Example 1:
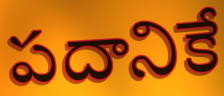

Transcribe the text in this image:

పదానికే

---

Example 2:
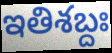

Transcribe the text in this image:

ఇతిశబ్దః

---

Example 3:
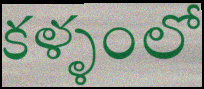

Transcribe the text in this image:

కళ్ళంలో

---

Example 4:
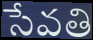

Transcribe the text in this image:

సేవతి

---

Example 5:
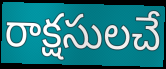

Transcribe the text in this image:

రాక్షసులచే